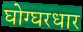
घोग्घरधार